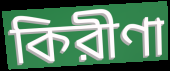
কিরীণা